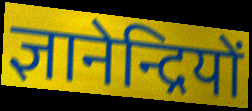
ज्ञानेन्द्रियों